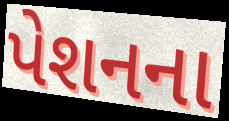
પેશનના